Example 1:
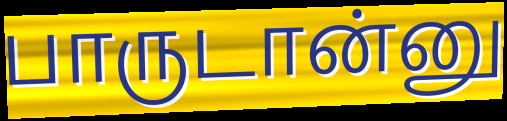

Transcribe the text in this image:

பாருடான்னு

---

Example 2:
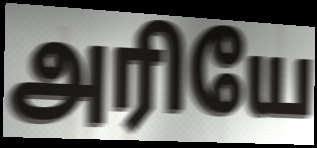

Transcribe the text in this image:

அரியே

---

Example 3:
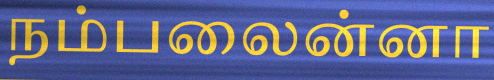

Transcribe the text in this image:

நம்பலைன்னா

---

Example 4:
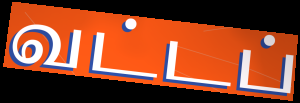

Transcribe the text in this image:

வட்டப்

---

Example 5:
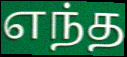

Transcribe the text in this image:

எந்த